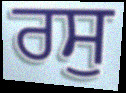
ਰਸੁ